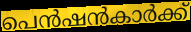
പെൻഷൻകാർക്ക്